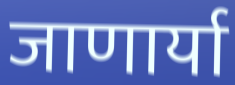
जाणार्या